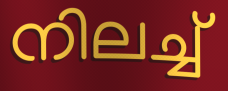
നിലച്ച്